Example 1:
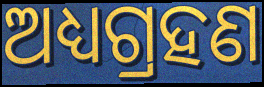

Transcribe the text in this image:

ଅଧ୍ୟଗ୍ରହଣ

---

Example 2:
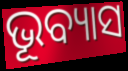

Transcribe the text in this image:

ଭୂବ୍ୟାସ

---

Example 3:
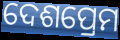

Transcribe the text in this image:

ଦେଶପ୍ରେମ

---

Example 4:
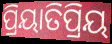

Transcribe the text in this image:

ପ୍ରିୟାତିପ୍ରିୟ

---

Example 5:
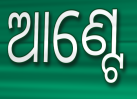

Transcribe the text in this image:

ଆଣ୍ଟେ